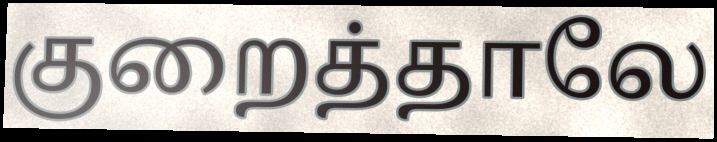
குறைத்தாலே